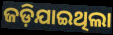
ଜଡ଼ିଯାଇଥିଲା